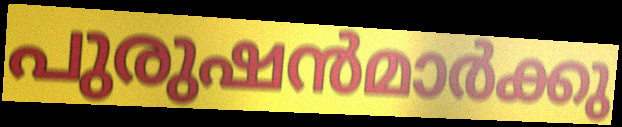
പുരുഷൻമാർക്കു